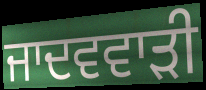
ਜਾਦਵਵਾੜੀ